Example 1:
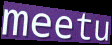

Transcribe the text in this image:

meetu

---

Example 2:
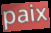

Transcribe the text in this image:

paix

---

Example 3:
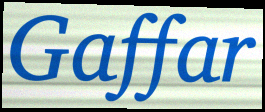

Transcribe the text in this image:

Gaffar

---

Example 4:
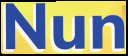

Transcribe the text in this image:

Nun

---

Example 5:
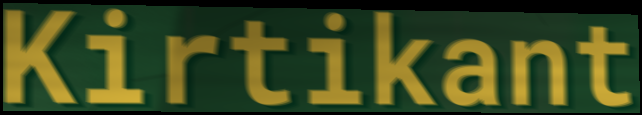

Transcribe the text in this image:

Kirtikant